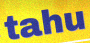
tahu